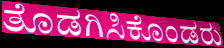
ತೊಡಗಿಸಿಕೊಂಡರು